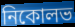
নিকোলভ